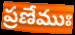
ప్రణేముః